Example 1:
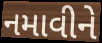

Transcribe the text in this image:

નમાવીને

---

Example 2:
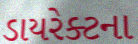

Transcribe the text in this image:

ડાયરેક્ટના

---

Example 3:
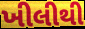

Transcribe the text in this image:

ખીલીથી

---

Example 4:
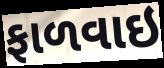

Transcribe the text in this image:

ફાળવાઇ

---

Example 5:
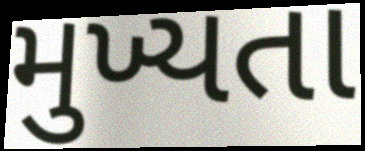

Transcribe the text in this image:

મુખ્યતા